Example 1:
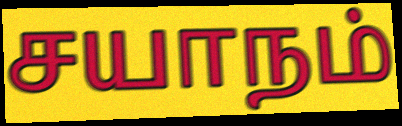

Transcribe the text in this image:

சயாநம்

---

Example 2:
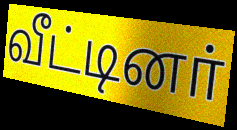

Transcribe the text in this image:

வீட்டினர்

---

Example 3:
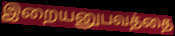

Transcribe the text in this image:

இறையனுபவத்தை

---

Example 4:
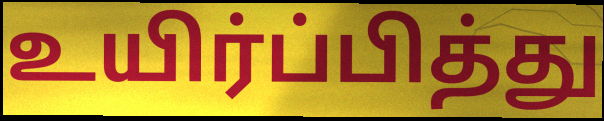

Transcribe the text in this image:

உயிர்ப்பித்து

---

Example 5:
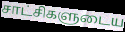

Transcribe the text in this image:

சாட்சிகளுடைய